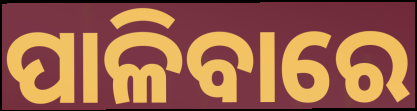
ପାଳିବାରେ